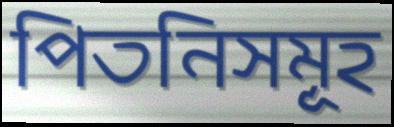
পিতনিসমূহ